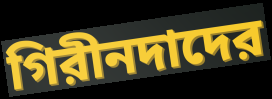
গিরীনদাদের